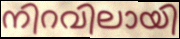
നിറവിലായി